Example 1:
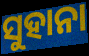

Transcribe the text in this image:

ସୁହାନା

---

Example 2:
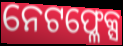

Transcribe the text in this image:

ନେଟଫ୍ଳେକ୍ସ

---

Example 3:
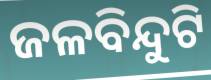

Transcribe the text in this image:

ଜଳବିନ୍ଦୁଟି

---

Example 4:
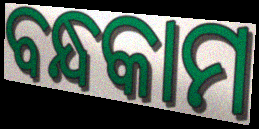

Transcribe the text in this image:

ବନ୍ଧକାମ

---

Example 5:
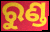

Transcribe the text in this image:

ରୁଣ୍ଡ